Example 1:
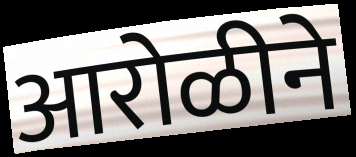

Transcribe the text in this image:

आरोळीने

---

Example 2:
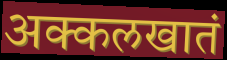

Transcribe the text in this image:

अक्कलखातं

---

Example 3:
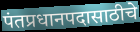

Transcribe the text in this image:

पंतप्रधानपदासाठीचे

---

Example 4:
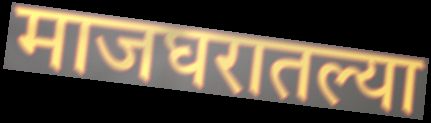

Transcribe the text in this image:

माजघरातल्या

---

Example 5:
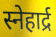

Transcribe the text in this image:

स्नेहार्द्र